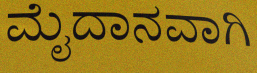
ಮೈದಾನವಾಗಿ